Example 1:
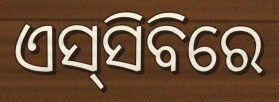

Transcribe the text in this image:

ଏସ୍‌ସିବିରେ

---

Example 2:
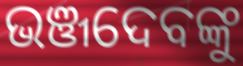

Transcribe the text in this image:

ଭଞ୍ଜଦେବଙ୍କୁ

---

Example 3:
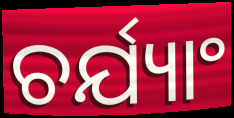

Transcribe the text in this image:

ଚର୍ଯ୍ୟାଂ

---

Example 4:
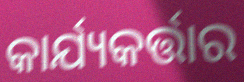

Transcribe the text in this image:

କାର୍ଯ୍ୟକର୍ତ୍ତାର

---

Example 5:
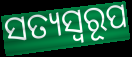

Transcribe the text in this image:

ସତ୍ୟସ୍ୱରୂପ